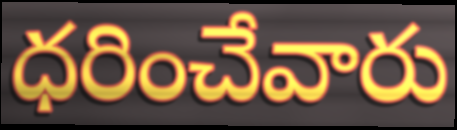
ధరించేవారు